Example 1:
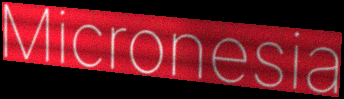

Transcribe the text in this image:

Micronesia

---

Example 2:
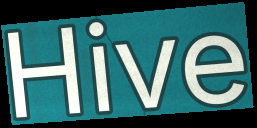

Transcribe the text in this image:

Hive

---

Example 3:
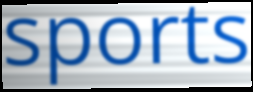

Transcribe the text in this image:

sports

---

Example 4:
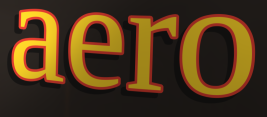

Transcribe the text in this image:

aero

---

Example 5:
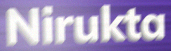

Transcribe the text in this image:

Nirukta